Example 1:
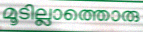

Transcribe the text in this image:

മൂടില്ലാത്തൊരു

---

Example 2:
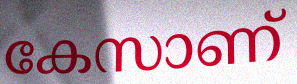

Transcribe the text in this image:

കേസാണ്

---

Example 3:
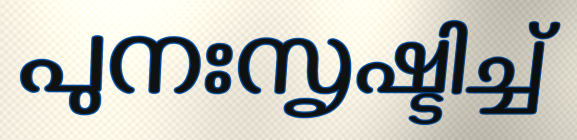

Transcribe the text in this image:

പുനഃസൃഷ്ടിച്ച്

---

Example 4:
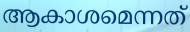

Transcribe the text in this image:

ആകാശമെന്നത്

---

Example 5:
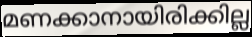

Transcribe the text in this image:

മണക്കാനായിരിക്കില്ല